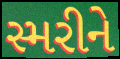
સ્મરીને